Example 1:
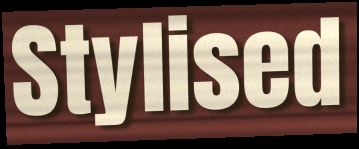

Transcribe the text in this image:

Stylised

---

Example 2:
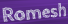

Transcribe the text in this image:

Romesh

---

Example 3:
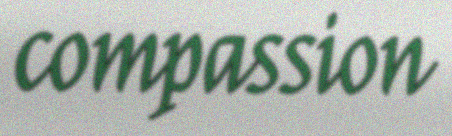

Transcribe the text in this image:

compassion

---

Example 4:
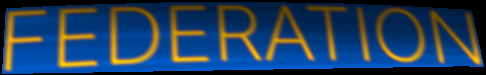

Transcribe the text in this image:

FEDERATION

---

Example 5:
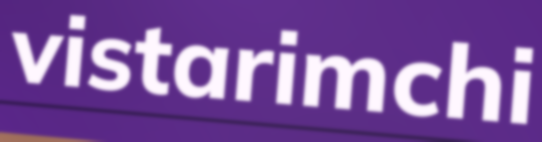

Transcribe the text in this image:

vistarimchi